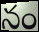
నం